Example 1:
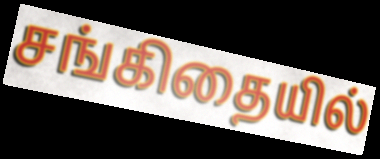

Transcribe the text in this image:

சங்கிதையில்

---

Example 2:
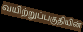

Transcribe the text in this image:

வயிற்றுப்பகுதியின்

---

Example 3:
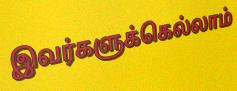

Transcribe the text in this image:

இவர்களுக்கெல்லாம்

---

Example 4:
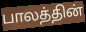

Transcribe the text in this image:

பாலத்தின்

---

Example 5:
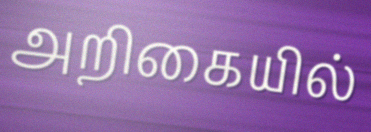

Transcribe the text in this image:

அறிகையில்